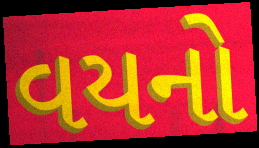
વયનો